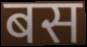
बस